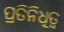
ପ୍ରତିନିଧିତ୍ବ